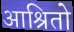
आश्रितो